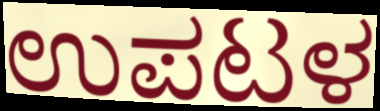
ಉಪಟಳ